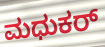
ಮಧುಕರ್